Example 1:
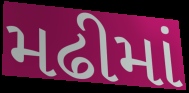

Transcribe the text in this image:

મઢીમાં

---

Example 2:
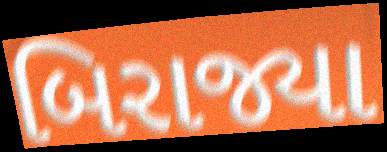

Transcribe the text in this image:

બિરાજ્યા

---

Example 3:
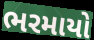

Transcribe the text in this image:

ભરમાયો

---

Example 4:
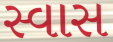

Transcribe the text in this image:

સ્વાસ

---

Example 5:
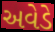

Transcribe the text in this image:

અવેડે